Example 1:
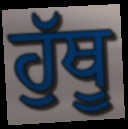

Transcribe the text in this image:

ਹੁੱਥੂ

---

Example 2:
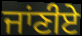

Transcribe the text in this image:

ਜਾਂਣੀਏ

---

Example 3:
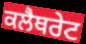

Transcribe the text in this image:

ਕਲੈਥਰੇਟ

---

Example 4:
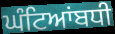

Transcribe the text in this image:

ਘੰਟਿਆਂਬਧੀ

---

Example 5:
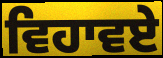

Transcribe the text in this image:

ਵਿਹਾਵਏ